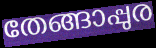
തേങ്ങാപ്പുര